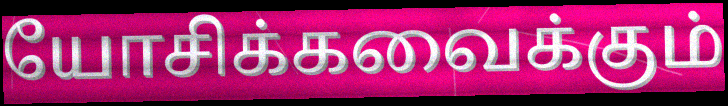
யோசிக்கவைக்கும்